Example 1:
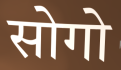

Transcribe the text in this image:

सोगो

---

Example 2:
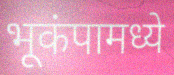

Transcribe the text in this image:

भूकंपामध्ये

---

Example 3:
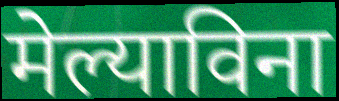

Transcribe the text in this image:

मेल्याविना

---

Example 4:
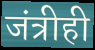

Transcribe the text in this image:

जंत्रीही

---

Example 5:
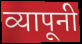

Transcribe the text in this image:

व्यापूनी